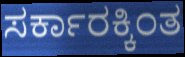
ಸರ್ಕಾರಕ್ಕಿಂತ